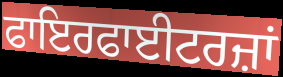
ਫਾਇਰਫਾਈਟਰਜ਼ਾਂ